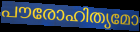
പൗരോഹിത്യമോ